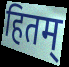
हितम्